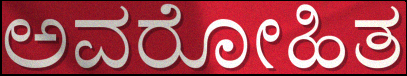
ಅವರೋಹಿತ